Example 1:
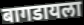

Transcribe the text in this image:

बागडायला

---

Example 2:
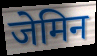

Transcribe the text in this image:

जेमिन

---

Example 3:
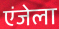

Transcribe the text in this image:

एंजेला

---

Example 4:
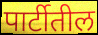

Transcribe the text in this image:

पार्टीतील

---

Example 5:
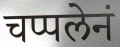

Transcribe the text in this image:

चप्पलेनं